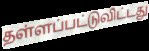
தள்ளப்பட்டுவிட்டது